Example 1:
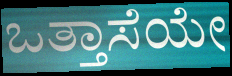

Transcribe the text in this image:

ಒತ್ತಾಸೆಯೇ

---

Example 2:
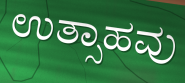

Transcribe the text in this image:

ಉತ್ಸಾಹವು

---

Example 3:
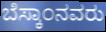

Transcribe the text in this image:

ಬೆಸ್ಕಾಂನವರು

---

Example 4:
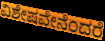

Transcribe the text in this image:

ವಿಶೇಷವೇನೆಂದರೆ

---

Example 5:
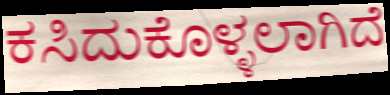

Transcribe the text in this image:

ಕಸಿದುಕೊಳ್ಳಲಾಗಿದೆ